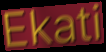
Ekati